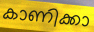
കാണിക്കാ